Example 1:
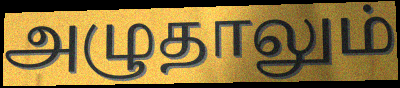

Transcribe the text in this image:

அழுதாலும்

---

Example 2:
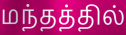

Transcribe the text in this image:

மந்தத்தில்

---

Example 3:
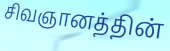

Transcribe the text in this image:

சிவஞானத்தின்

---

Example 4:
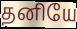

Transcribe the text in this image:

தனியே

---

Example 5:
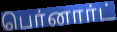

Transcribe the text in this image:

பெர்னார்ட்